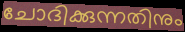
ചോദിക്കുന്നതിനും